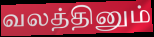
வலத்தினும்